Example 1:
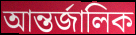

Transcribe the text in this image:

আন্তর্জালিক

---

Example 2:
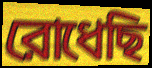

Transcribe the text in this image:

রোধেছি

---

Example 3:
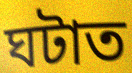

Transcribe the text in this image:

ঘটাত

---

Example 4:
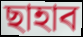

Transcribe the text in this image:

ছাহাব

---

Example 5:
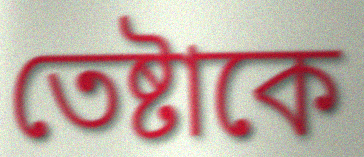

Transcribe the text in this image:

তেষ্টাকে